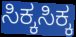
ಸಿಕ್ಕಸಿಕ್ಕ